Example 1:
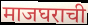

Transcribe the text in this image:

माजघराची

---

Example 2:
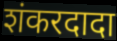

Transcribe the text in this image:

शंकरदादा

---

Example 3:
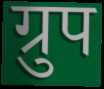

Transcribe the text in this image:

ग्रुप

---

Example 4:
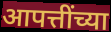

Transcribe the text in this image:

आपत्तींच्या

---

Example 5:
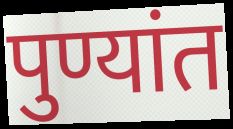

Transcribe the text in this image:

पुण्यांत